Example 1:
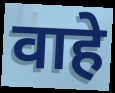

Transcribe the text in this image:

वाहे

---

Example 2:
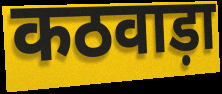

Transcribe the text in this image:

कठवाड़ा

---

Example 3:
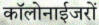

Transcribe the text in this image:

कॉलोनाईजरों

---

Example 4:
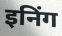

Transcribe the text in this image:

इनिंग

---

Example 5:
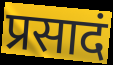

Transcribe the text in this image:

प्रसादं